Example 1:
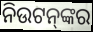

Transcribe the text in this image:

ନିଉଟନ୍‌ଙ୍କର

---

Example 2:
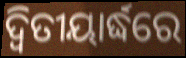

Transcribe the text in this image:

ଦ୍ବିତୀୟାର୍ଦ୍ଧରେ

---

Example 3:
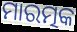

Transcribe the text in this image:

ମାରତ୍ମକ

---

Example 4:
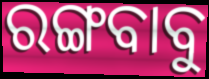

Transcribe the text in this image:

ରଙ୍ଗବାବୁ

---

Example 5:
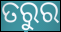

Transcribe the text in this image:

ତରୁର